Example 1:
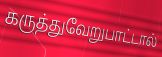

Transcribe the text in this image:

கருத்துவேறுபாட்டால்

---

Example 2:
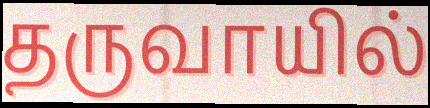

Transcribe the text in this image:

தருவாயில்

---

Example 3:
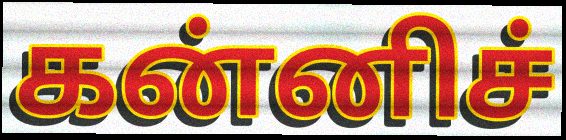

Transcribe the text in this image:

கன்னிச்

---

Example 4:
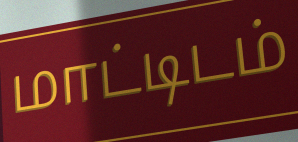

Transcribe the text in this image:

மாட்டிடம்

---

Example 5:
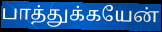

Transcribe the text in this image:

பாத்துக்கயேன்